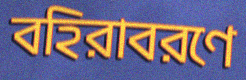
বহিরাবরণে